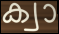
ക്വാ